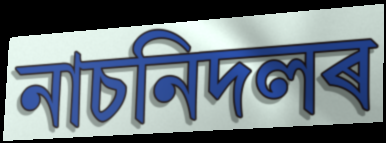
নাচনিদলৰ